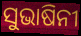
ସୁଭାଷିନୀ